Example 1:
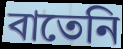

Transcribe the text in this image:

বাতেনি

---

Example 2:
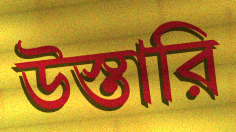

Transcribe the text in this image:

উস্তারি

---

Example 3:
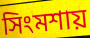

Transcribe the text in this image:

সিংমশায়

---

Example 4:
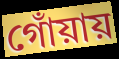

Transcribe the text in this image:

গোঁয়ায়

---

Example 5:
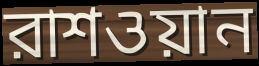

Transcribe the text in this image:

রাশওয়ান